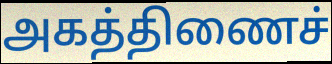
அகத்திணைச்